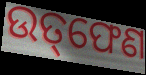
ଉତ୍‌ଫେଣ